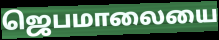
ஜெபமாலையை